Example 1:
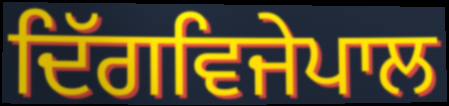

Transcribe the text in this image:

ਦਿੱਗਵਿਜੇਪਾਲ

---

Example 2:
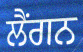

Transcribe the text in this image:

ਲੈਂਗਨ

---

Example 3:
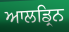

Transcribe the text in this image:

ਆਲਡ੍ਰਿਨ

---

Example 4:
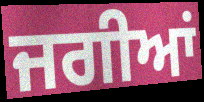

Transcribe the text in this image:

ਜਗੀਆਂ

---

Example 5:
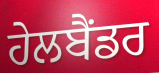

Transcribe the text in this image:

ਹੇਲਬੈਂਡਰ